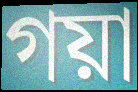
গয়া